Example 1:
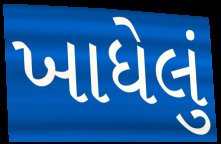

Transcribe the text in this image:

ખાધેલું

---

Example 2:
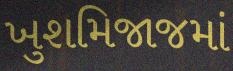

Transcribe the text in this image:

ખુશમિજાજમાં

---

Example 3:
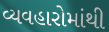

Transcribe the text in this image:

વ્યવહારોમાંથી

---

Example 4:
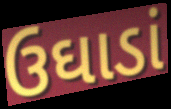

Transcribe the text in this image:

ઉઘાડાં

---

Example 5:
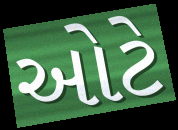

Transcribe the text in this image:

ઓટે